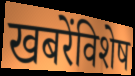
खबरेंविशेष